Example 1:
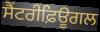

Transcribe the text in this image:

ਸੈਂਟਰੀਫ਼ਿਊਗਲ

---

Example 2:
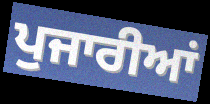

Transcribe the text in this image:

ਪੁਜਾਰੀਆਂ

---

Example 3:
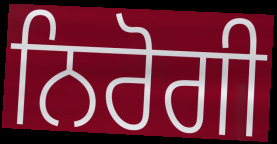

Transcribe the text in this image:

ਨਿਰੋਗੀ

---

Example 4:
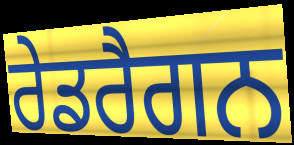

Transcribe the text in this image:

ਰੇਡਰੈਗਨ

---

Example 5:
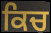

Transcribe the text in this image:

ਕਿਚ